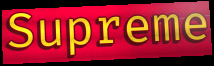
Supreme